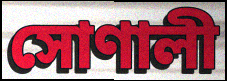
সোণালী